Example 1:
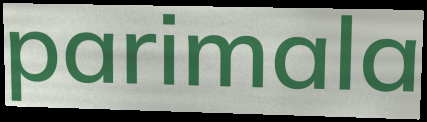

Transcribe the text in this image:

parimala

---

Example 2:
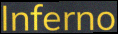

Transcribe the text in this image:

Inferno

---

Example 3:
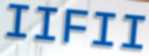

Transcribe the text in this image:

IIFII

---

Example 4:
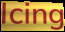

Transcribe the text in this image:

Icing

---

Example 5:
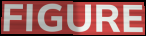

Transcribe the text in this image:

FIGURE